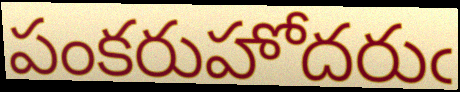
పంకరుహోదరుఁ